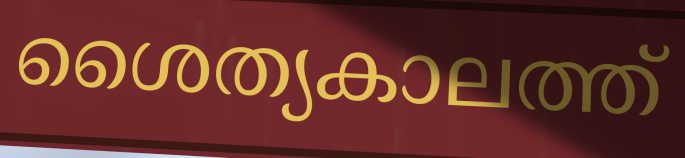
ശൈത്യകാലത്ത്